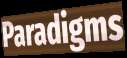
Paradigms